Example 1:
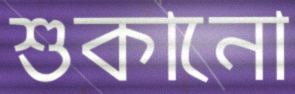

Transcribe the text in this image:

শুকানো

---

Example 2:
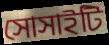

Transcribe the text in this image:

সোসাইটি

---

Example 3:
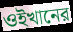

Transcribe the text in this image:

ওইখানের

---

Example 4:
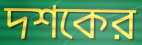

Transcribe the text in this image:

দশকের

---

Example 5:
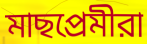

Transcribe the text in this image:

মাছপ্রেমীরা